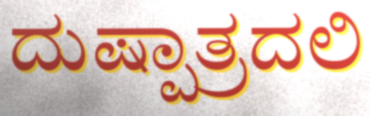
ದುಷ್ಪಾತ್ರದಲಿ